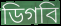
ডিগবি